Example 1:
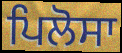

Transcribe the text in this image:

ਪਿਲੋਸਾ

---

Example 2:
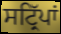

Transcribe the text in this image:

ਸਟ੍ਰਿੱਪਾਂ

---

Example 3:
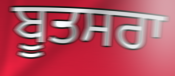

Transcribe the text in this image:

ਬੂਤਸਰਾ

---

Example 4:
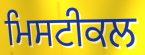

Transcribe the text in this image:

ਮਿਸਟੀਕਲ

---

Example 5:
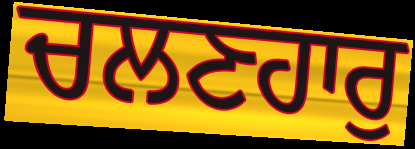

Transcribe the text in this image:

ਚਲਣਹਾਰੁ